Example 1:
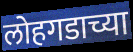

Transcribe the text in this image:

लोहगडाच्या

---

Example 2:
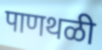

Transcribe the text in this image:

पाणथळी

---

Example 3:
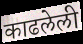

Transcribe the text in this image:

काढलेली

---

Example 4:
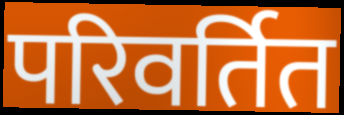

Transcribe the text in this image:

परिवर्तित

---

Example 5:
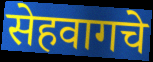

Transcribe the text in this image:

सेहवागचे